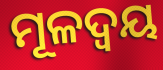
ମୂଳଦ୍ଵୟ